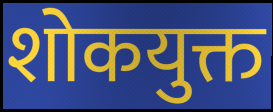
शोकयुक्त